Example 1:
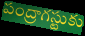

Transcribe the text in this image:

పంద్రాగస్టుకు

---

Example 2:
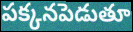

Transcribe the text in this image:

పక్కనపెడుతూ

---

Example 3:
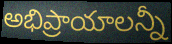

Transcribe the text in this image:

అభిప్రాయాలన్నీ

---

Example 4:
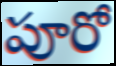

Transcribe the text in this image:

పూరో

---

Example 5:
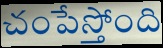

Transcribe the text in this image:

చంపేస్తోంది